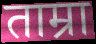
ताम्रा